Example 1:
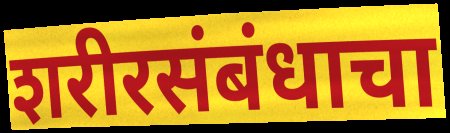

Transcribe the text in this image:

शरीरसंबंधाचा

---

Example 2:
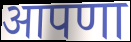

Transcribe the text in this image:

आपणा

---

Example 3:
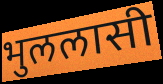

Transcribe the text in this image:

भुललासी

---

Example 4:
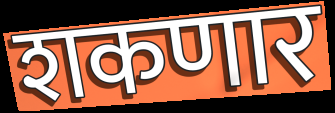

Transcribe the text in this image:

शकणार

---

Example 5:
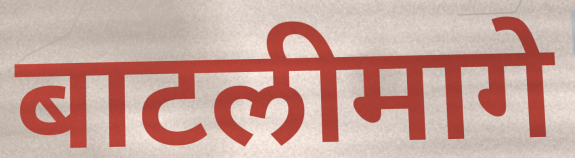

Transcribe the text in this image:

बाटलीमागे